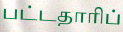
பட்டதாரிப்